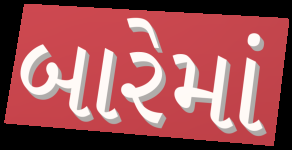
બારેમાં